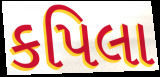
કપિલા